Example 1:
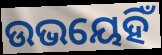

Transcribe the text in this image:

ଉଭୟେହିଁ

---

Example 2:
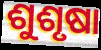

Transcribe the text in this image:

ଶୁଶୃଷା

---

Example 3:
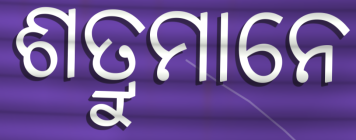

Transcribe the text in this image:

ଶତ୍ରୁମାନେ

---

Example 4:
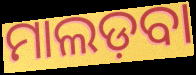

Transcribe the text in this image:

ମାଲଡ଼ବା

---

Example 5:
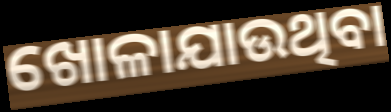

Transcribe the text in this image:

ଖୋଳାଯାଉଥିବା